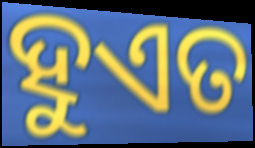
ହୁଏତ